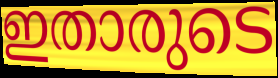
ഇതാരുടെ